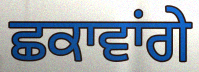
ਛਕਾਵਾਂਗੇ